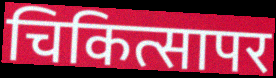
चिकित्सापर